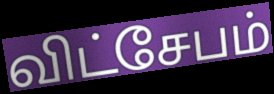
விட்சேபம்